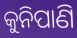
କୁନିପାଣି